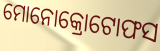
ମୋନୋକ୍ରୋଟୋଫସ